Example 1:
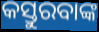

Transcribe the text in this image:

କସ୍ତୁରବାଙ୍କ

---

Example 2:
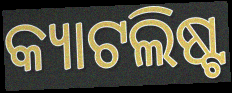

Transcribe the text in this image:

କ୍ୟାଟଲିଷ୍ଟ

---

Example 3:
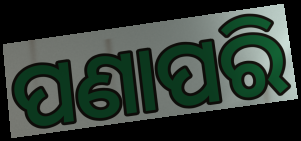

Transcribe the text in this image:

ପଣାପରି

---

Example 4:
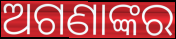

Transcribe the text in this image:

ଅଗଣାଙ୍କର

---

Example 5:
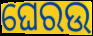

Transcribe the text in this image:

ଘେରଉ